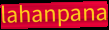
lahanpana